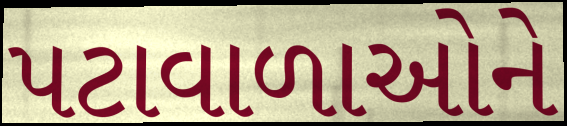
પટાવાળાઓને